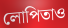
লোপিতাও